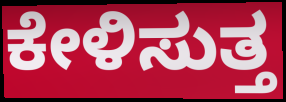
ಕೇಳಿಸುತ್ತ